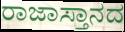
ರಾಜಾಸ್ತಾನದ